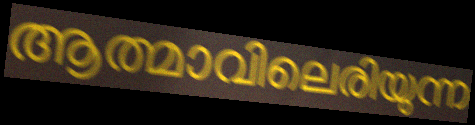
ആത്മാവിലെരിയുന്ന